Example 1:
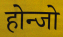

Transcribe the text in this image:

होन्जो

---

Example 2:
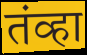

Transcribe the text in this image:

तंव्हा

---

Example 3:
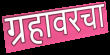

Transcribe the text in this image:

ग्रहावरचा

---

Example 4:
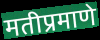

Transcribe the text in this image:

मतीप्रमाणे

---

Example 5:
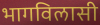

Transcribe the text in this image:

भागविलासी